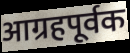
आग्रहपूर्वक